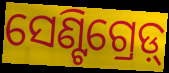
ସେଣ୍ଟିଗ୍ରେଡ଼୍